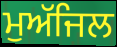
ਮੁਅੱਜਿਲ